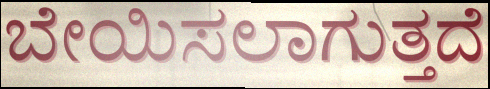
ಬೇಯಿಸಲಾಗುತ್ತದೆ